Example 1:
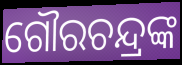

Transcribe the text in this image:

ଗୌରଚନ୍ଦ୍ରଙ୍କ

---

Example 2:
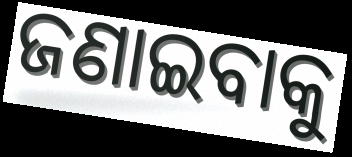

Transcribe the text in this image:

ଜଣାଇବାକୁ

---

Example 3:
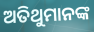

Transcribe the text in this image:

ଅତିଥୁମାନଙ୍କ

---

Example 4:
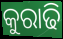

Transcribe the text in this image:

କୁରାଢି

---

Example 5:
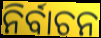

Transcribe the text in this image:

ନିର୍ବାଚନ